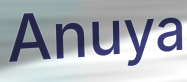
Anuya